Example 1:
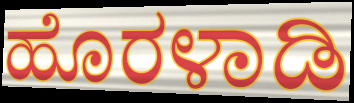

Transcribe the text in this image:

ಹೊರಳಾಡಿ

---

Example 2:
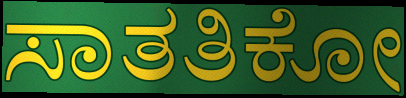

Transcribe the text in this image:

ಸಾತತಿಕೋ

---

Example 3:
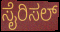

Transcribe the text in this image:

ಸೈರಿಸಲ್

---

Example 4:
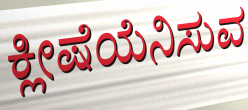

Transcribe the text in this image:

ಕ್ಲೀಷೆಯೆನಿಸುವ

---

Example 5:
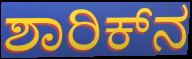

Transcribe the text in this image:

ಶಾರಿಕ್‌ನ